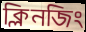
ক্লিনজিং